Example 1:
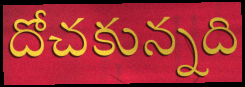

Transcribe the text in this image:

దోచకున్నది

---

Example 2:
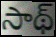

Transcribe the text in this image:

సాథ్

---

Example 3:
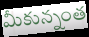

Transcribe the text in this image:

మీకున్నంత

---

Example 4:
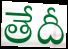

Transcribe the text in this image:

తేదీ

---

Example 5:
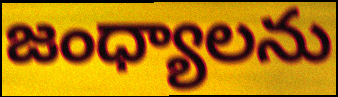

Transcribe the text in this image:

జంధ్యాలను